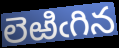
లెఱిఁగిన